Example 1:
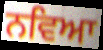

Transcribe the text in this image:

ਨਵਿਆ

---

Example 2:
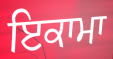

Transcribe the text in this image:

ਇਕਾਮਾ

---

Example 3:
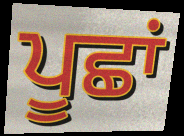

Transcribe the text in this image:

ਪੂਛਾਂ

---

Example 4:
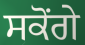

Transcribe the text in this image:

ਸਕੋਂਗੇ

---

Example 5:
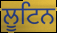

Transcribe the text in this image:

ਲੂਟਿਨ